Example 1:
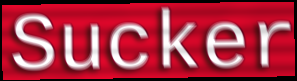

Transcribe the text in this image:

Sucker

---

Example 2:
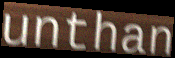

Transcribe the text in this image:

unthan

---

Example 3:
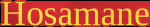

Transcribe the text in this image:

Hosamane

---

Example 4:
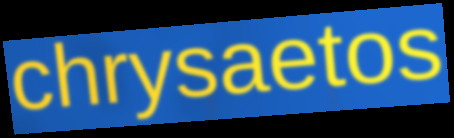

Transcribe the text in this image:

chrysaetos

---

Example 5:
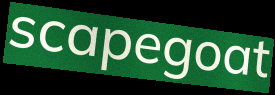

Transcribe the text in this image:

scapegoat